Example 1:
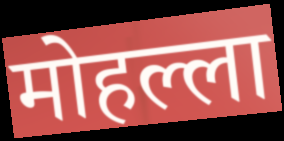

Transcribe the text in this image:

मोहल्ला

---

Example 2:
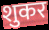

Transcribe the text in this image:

शुकर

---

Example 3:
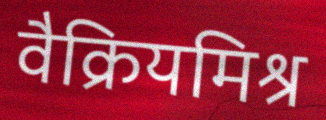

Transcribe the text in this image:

वैक्रियमिश्र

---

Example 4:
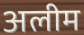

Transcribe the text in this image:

अलीम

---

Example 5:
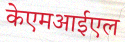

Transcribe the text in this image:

केएमआईएल